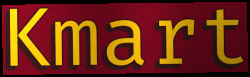
Kmart